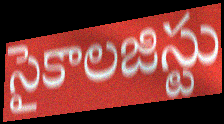
సైకాలజిస్టు